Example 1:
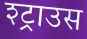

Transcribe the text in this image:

श्ट्राउस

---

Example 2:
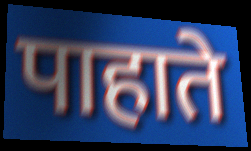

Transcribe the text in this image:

पाहाते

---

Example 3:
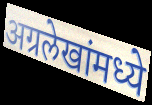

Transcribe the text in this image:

अग्रलेखांमध्ये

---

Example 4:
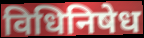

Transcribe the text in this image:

विधिनिषेध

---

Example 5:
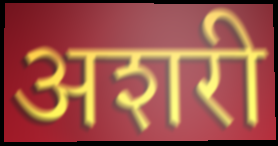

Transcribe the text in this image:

अशरी